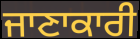
ਜਾਣਾਕਾਰੀ